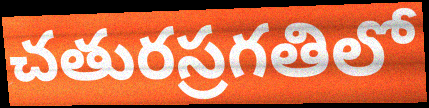
చతురస్రగతిలో